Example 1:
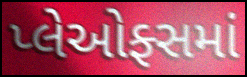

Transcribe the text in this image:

પ્લેઓફ્સમાં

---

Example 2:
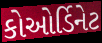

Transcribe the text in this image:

કોઓર્ડિનેટ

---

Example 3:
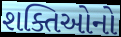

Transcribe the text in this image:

શક્તિઓનો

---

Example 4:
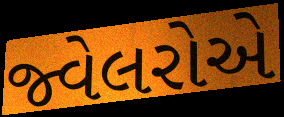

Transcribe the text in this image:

જ્વેલરોએ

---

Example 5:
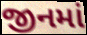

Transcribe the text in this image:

જીનમાં